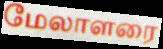
மேலாளரை